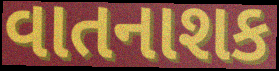
વાતનાશક